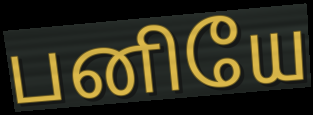
பனியே